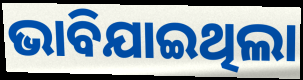
ଭାବିଯାଇଥିଲା